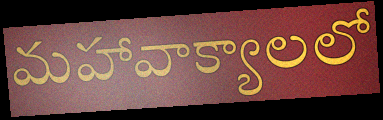
మహావాక్యాలలో